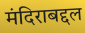
मंदिराबद्दल